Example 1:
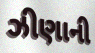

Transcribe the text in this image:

ઝીણાની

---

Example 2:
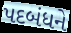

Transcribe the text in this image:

પદબંધને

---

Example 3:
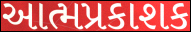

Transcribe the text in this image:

આત્મપ્રકાશક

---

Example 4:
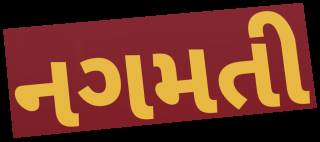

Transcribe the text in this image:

નગમતી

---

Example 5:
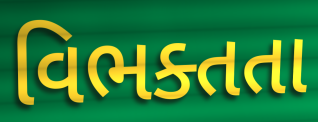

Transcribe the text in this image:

વિભક્તતા